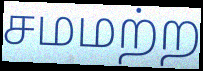
சமமற்ற